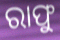
ରାଫୁ